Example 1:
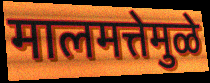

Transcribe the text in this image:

मालमत्तेमुळे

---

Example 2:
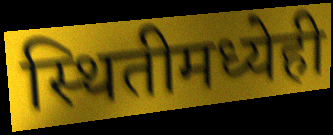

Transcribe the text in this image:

स्थितीमध्येही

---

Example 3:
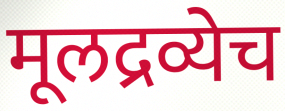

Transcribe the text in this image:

मूलद्रव्येच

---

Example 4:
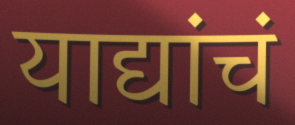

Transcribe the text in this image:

याद्यांचं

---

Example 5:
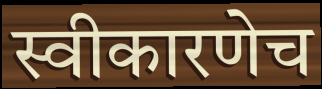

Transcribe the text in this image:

स्वीकारणेच